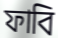
ফাবি